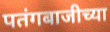
पतंगबाजीच्या